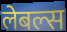
लेबल्स